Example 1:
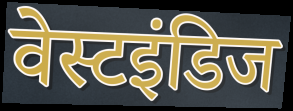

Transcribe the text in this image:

वेस्टइंडिज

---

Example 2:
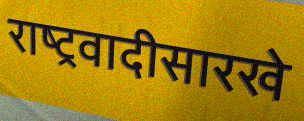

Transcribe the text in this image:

राष्ट्रवादीसारखे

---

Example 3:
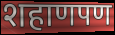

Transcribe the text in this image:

शहाणपण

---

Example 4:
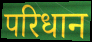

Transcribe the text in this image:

परिधान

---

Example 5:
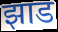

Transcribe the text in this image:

झाड